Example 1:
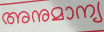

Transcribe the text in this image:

അനുമാന്യ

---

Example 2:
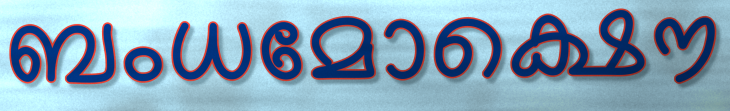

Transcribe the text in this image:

ബംധമോക്ഷൌ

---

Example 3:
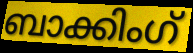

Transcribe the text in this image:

ബാക്കിംഗ്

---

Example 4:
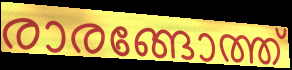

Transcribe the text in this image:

രാരങ്ങോത്ത്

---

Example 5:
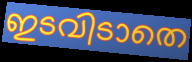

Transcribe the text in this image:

ഇടവിടാതെ